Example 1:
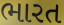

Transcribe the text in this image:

ભારત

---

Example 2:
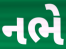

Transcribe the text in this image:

નભે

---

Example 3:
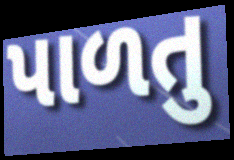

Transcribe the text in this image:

પાળતુ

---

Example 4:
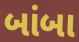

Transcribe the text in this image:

બાંબા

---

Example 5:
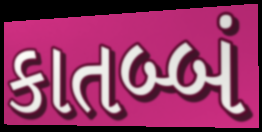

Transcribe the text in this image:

કાતબ્બં